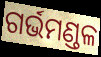
ଗର୍ଭମଣ୍ଡଳ